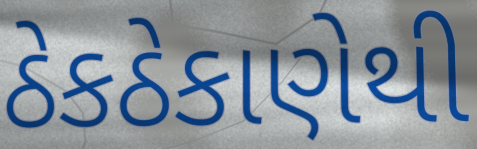
ઠેકઠેકાણેથી